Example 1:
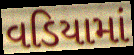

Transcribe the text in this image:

વડિયામાં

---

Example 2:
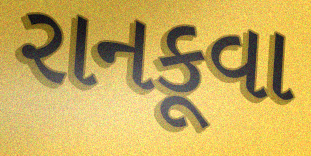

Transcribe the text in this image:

રાનકૂવા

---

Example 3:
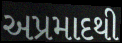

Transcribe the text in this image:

અપ્રમાદથી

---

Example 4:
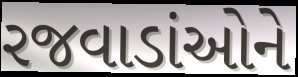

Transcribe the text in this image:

રજવાડાંઓને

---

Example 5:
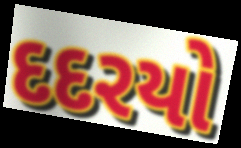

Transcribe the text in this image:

દદરયો